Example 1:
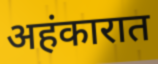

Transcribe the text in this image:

अहंकारात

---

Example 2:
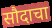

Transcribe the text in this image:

सौदाचा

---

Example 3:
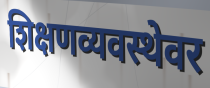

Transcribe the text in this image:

शिक्षणव्यवस्थेवर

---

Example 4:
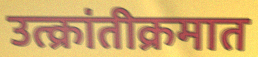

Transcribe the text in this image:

उत्क्रांतीक्रमात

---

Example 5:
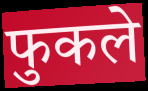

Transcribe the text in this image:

फुकले